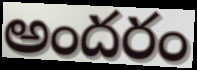
అందరం